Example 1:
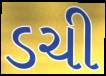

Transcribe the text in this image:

ડચી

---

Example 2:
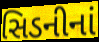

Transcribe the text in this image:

સિડનીનાં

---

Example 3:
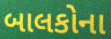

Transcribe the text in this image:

બાલકોના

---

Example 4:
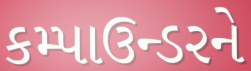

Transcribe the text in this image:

કમ્પાઉન્ડરને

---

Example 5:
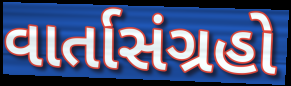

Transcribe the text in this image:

વાર્તાસંગ્રહો